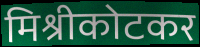
मिश्रीकोटकर